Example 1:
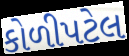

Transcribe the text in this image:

કોળીપટેલ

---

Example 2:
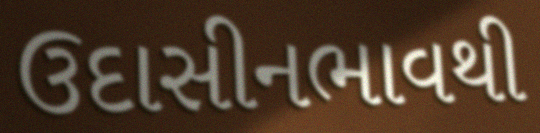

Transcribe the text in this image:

ઉદાસીનભાવથી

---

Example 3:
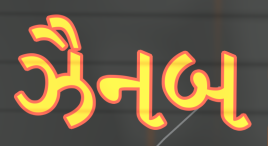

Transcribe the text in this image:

ઝૈનબ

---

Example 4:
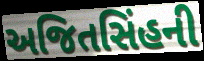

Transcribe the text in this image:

અજિતસિંહની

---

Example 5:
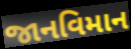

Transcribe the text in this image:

જાનવિમાન